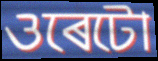
ওৰেটো